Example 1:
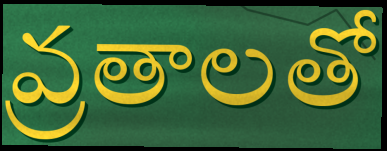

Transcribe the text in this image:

వ్రతాలతో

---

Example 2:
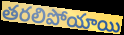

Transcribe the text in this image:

తరలిపోయాయి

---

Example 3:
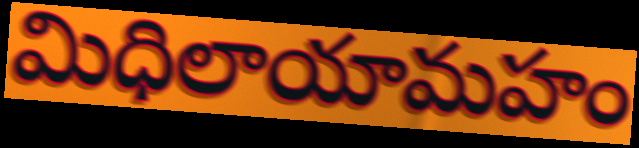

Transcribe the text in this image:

మిధిలాయామహం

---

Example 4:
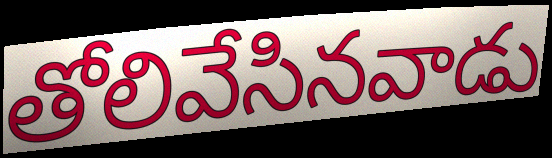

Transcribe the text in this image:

తోలివేసినవాడు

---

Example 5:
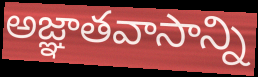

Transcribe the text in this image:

అజ్ఞాతవాసాన్ని